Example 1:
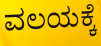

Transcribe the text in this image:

ವಲಯಕ್ಕೆ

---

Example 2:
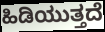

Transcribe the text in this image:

ಹಿಡಿಯುತ್ತದೆ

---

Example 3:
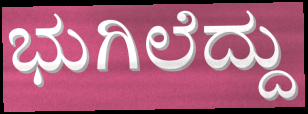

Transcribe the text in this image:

ಭುಗಿಲೆದ್ದು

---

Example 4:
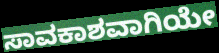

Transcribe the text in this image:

ಸಾವಕಾಶವಾಗಿಯೇ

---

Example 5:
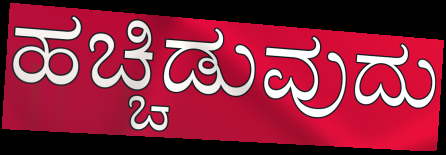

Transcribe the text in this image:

ಹಚ್ಚಿಡುವುದು